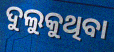
ଦୁଲୁକୁଥିବା